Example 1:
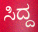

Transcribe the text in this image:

ಸಿದ್ದ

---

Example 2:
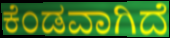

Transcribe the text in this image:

ಕೆಂಡವಾಗಿದೆ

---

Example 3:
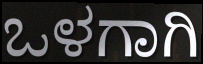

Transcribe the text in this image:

ಒಳಗಾಗಿ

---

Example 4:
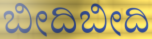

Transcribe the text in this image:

ಬೀದಿಬೀದಿ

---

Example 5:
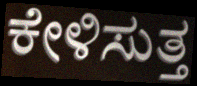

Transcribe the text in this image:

ಕೇಳಿಸುತ್ತ